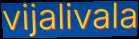
vijalivala